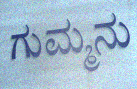
ಗುಮ್ಮನು